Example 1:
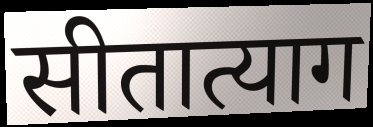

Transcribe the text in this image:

सीतात्याग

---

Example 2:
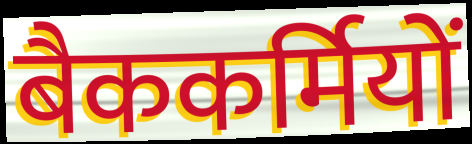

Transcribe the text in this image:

बैककर्मियों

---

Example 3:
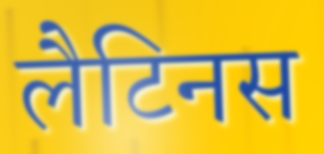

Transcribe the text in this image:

लैटिनस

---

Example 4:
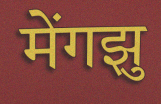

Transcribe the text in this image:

मेंगझु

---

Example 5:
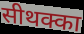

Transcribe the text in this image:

सीथक्का